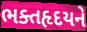
ભક્તહૃદયને